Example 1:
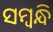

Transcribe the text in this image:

ସମ୍ବନ୍ଧି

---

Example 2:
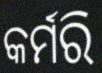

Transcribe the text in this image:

କର୍ମରି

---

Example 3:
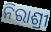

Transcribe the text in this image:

ନିରାଶ୍ରୀ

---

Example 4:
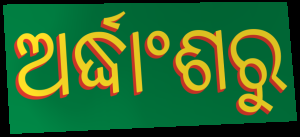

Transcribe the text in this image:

ଅର୍ଦ୍ଧାଂଶରୁ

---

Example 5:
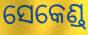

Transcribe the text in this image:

ସେକେଣ୍ଡ୍